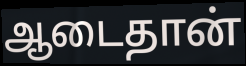
ஆடைதான்